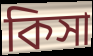
কিসা